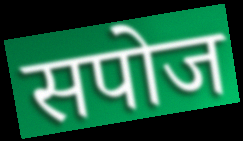
सपोज